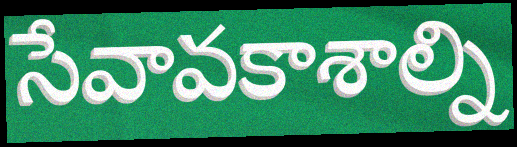
సేవావకాశాల్ని